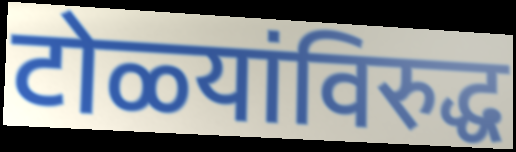
टोळ्यांविरुद्ध